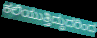
ಕಲಿಯುತ್ತಿದ್ದುದರಿಂದ